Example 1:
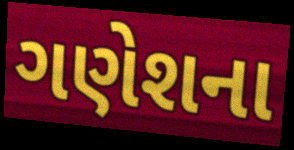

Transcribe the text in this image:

ગણેશના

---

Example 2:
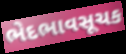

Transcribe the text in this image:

ભેદભાવસૂચક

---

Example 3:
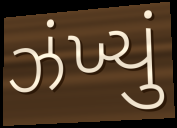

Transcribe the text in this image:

ઝંખ્યું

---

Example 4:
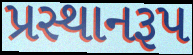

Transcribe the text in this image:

પ્રસ્થાનરૂપ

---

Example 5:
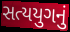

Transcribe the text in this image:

સત્યયુગનું